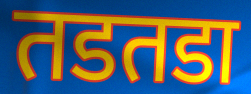
तडतडा